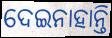
ଦେଇନାହାନ୍ତି